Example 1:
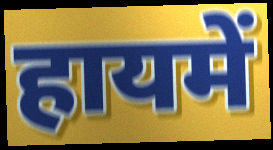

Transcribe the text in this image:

हायमें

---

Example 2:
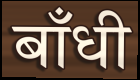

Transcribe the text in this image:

बाँधी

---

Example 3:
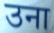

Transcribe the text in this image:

उना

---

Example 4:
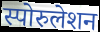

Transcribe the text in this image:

स्पोरुलेशन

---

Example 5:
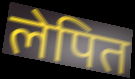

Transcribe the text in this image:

लेपित